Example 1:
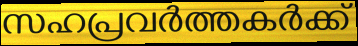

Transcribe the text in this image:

സഹപ്രവർത്തകർക്ക്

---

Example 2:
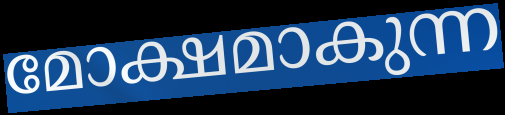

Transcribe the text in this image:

മോക്ഷമാകുന്ന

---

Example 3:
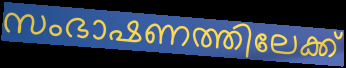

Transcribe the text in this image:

സംഭാഷണത്തിലേക്ക്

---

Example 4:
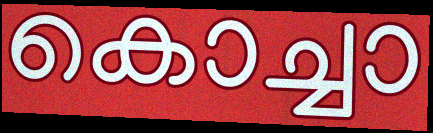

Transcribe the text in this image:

കൊച്ചാ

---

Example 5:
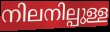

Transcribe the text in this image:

നിലനില്പുള്ള